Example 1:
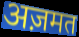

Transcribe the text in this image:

अज़मत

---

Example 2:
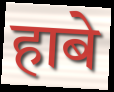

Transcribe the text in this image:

हाबे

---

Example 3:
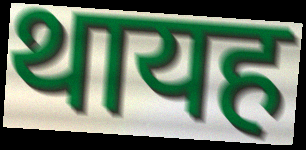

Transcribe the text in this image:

थायह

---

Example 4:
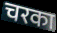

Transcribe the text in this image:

चरका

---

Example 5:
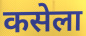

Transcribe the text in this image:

कसेला